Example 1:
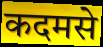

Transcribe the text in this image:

कदमसे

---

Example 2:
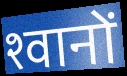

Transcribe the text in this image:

श्वानों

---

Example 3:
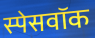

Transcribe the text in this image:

स्पेसवॉक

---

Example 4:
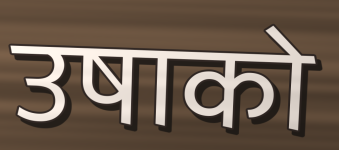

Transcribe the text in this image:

उषाको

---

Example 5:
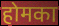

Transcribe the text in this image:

होमका